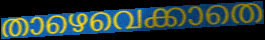
താഴെവെക്കാതെ